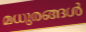
മധുരങ്ങൾ